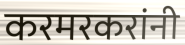
करमरकरांनी